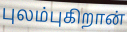
புலம்புகிறான்